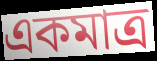
একমাত্ৰ